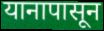
यानापासून